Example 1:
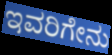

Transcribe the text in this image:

ಇವರಿಗೇನು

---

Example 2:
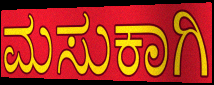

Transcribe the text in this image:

ಮಸುಕಾಗಿ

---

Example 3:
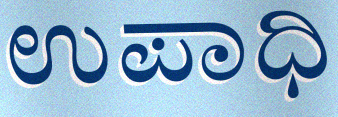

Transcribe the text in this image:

ಉಪಾಧಿ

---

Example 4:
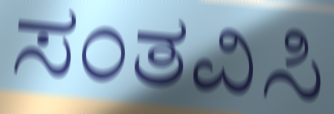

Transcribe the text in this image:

ಸಂತವಿಸಿ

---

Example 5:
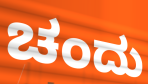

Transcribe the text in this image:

ಚಂದು